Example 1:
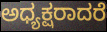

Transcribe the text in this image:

ಅಧ್ಯಕ್ಷರಾದರೆ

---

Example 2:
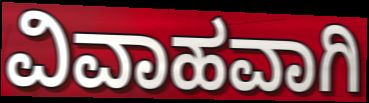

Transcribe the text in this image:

ವಿವಾಹವಾಗಿ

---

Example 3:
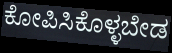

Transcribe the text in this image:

ಕೋಪಿಸಿಕೊಳ್ಳಬೇಡ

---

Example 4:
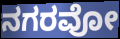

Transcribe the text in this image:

ನಗರವೋ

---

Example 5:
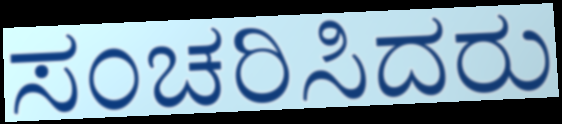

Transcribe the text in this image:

ಸಂಚರಿಸಿದರು